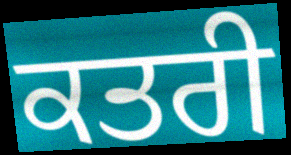
ਕਤਰੀ